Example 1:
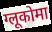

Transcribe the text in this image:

ग्लूकोमा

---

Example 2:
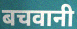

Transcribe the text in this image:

बचवानी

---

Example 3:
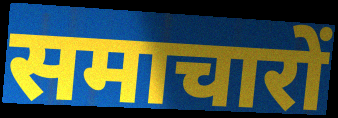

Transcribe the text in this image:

समाचारों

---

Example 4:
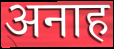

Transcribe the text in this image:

अनाह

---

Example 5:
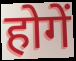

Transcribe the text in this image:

होगें